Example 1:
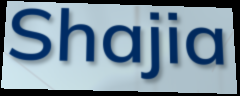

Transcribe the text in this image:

Shajia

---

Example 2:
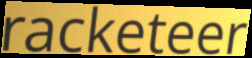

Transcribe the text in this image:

racketeer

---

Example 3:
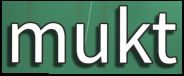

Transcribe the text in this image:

mukt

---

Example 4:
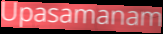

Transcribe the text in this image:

Upasamanam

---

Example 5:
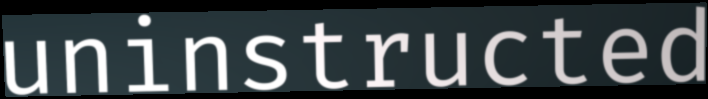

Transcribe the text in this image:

uninstructed